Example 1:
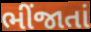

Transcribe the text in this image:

ભીંજાતાં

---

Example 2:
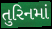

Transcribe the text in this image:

તુરિનમાં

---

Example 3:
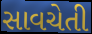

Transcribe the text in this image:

સાવચેતી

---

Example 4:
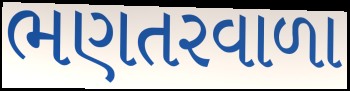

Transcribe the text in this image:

ભણતરવાળા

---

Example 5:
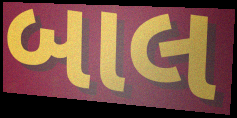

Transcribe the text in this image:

બાલ